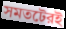
সমতটেরই